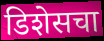
डिशेसचा